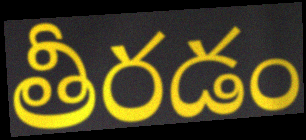
తీరడం